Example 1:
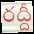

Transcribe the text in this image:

రద్దీ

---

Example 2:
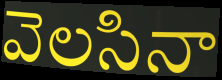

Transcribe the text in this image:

వెలసినా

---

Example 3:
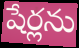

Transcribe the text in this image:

షేర్లను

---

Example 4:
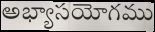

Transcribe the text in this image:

అభ్యాసయోగము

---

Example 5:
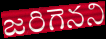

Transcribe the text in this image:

జరిగెనని